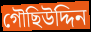
গৌছিউদ্দিন